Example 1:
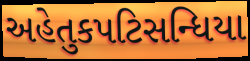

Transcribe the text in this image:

અહેતુકપટિસન્ધિયા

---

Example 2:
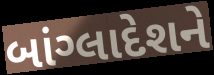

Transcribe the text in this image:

બાંગ્લાદેશને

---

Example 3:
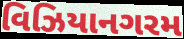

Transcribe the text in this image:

વિઝિયાનગરમ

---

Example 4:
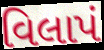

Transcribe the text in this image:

વિલાપં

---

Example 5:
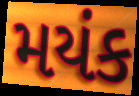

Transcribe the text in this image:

મયંક